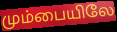
மும்பையிலே